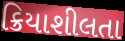
ક્રિયાશીલતા